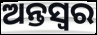
ଅନ୍ତସ୍ୱର